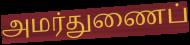
அமர்துணைப்